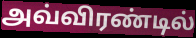
அவ்விரண்டில்